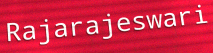
Rajarajeswari